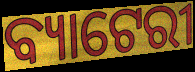
ବ୍ୟାଟେରୀ